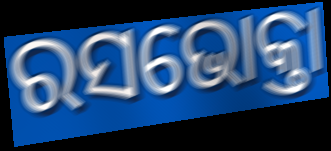
ରସଭୋକ୍ତା